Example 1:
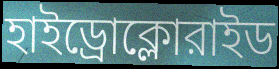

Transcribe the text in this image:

হাইড্রোক্লোরাইড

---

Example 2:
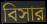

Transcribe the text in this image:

বিসার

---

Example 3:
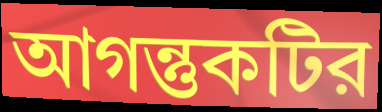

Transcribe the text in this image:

আগন্তুকটির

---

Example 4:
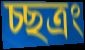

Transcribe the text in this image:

চ্ছত্রং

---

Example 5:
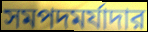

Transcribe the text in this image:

সমপদমর্যাদার